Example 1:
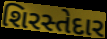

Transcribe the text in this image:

શિરસ્તેદાર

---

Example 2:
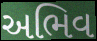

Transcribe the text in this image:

અભિવ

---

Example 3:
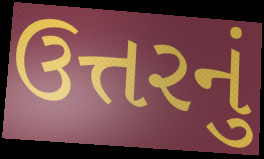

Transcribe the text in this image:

ઉત્તરનું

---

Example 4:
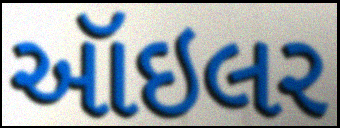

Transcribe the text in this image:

ઑઇલર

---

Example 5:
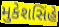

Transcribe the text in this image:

મુકેશસિંહે